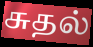
சுதல்